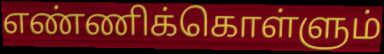
எண்ணிக்கொள்ளும்